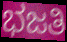
ಭಜತಿ